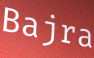
Bajra